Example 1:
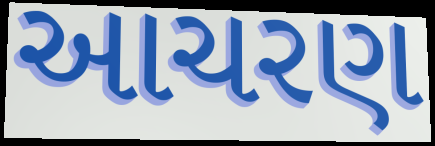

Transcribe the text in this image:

આચરણ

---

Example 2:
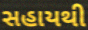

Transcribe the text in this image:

સહાયથી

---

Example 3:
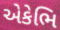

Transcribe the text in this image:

એકેભિ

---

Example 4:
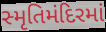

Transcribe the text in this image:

સ્મૃતિમંદિરમાં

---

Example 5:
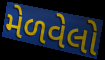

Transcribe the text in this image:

મેળવેલો